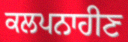
ਕਲਪਨਾਹੀਣ